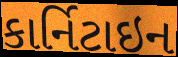
કાર્નિટાઇન